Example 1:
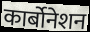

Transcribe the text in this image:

कार्बोनेशन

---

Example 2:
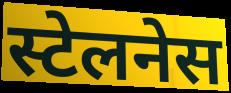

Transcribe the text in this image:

स्टेलनेस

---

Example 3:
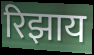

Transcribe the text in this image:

रिझाय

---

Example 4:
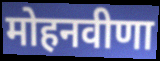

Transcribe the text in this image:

मोहनवीणा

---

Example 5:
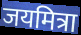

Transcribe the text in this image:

जयमित्रा